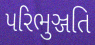
પરિભુઞ્જતિ